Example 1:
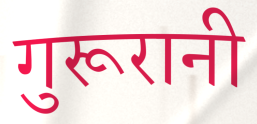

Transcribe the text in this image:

गुरूरानी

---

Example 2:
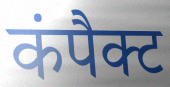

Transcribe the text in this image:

कंपैक्ट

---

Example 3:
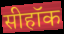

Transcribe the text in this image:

सीहॉक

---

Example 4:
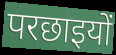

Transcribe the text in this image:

परछाइयों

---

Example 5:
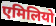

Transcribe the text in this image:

एमिलियो